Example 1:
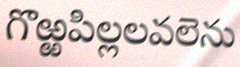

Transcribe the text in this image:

గొఱ్ఱపిల్లలవలెను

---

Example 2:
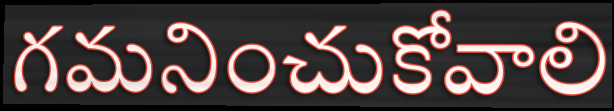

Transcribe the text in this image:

గమనించుకోవాలి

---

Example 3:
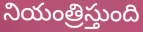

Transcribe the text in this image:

నియంత్రిస్తుంది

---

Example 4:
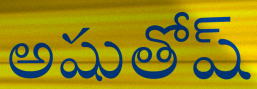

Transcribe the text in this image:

అషుతోష్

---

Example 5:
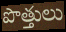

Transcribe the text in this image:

పొత్తులు